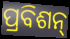
ପ୍ରବିଶନ୍